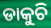
ଡାକୁଚି